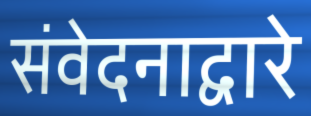
संवेदनाद्वारे